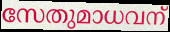
സേതുമാധവന്